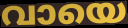
വായെ